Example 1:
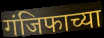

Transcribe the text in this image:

गंजिफाच्या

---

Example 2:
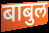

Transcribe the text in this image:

बाबुल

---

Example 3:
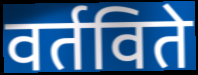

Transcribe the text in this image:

वर्तविते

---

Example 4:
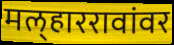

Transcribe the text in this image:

मल्हाररावांवर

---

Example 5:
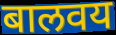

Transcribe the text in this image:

बालवय